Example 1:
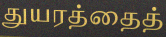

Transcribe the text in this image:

துயரத்தைத்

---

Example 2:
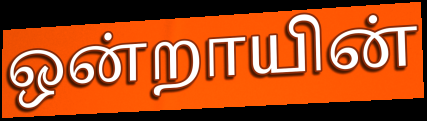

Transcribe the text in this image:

ஒன்றாயின்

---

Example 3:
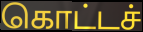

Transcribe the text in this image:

கொட்டச்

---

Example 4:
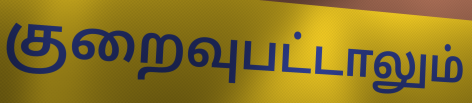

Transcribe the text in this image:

குறைவுபட்டாலும்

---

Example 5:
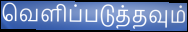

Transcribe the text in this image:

வெளிப்படுத்தவும்